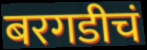
बरगडीचं